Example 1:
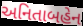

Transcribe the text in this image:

અનિતાબહેન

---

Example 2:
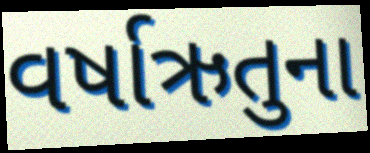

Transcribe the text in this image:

વર્ષાઋતુના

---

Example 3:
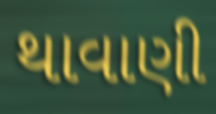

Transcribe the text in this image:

થાવાણી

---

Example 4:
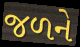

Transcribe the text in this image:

જળને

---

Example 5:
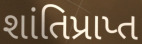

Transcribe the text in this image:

શાંતિપ્રાપ્ત